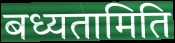
बध्यतामिति